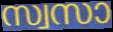
സ്വസാ